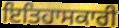
ਇਤਿਹਾਸਕਾਰੀ